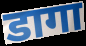
डागा